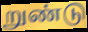
றுண்டு